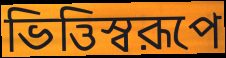
ভিত্তিস্বরূপে